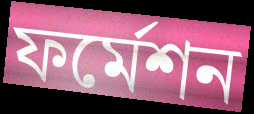
ফর্মেশন